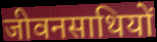
जीवनसाथियों